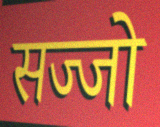
सज्जो